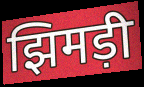
झिमड़ी